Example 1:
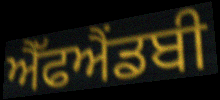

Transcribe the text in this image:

ਐੱਫਐਂਡਬੀ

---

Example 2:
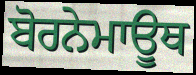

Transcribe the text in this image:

ਬੋਰਨੇਮਾਊਥ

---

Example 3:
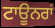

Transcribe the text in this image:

ਟਾਊਨਰਾਂ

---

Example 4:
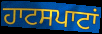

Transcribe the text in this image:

ਹਾਟਸਪਾਟਾਂ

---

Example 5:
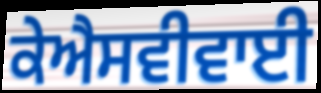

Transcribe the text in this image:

ਕੇਐਸਵੀਵਾਈ